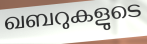
ഖബറുകളുടെ